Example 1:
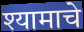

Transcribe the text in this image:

श्यामाचे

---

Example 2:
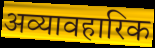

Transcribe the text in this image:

अव्यावहारिक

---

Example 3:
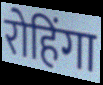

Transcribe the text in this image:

रोहिंगा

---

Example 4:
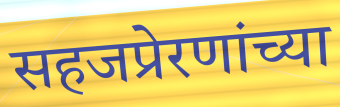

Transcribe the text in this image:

सहजप्रेरणांच्या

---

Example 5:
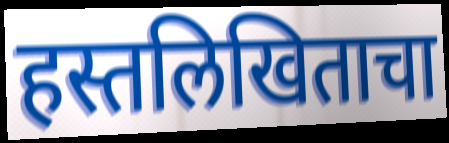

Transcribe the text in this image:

हस्तलिखिताचा